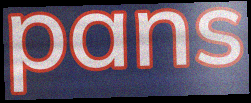
pans